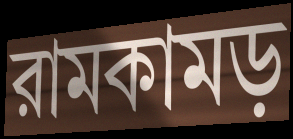
রামকামড়